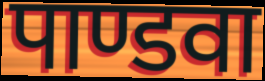
पाण्डवा